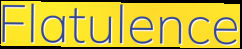
Flatulence